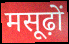
मसूढ़ों